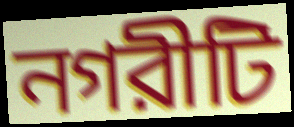
নগরীটি